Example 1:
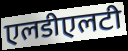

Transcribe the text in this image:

एलडीएलटी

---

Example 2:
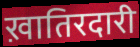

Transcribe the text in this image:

ख़ातिरदारी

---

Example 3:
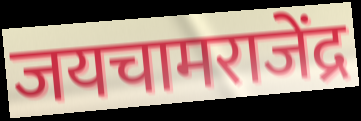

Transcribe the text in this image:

जयचामराजेंद्र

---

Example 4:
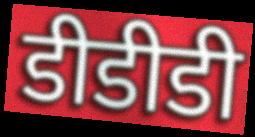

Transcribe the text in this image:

डीडीडी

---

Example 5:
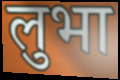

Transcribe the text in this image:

लुभा